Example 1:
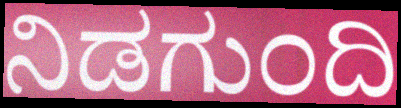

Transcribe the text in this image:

ನಿಡಗುಂದಿ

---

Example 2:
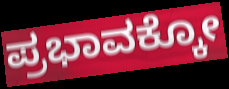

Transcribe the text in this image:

ಪ್ರಭಾವಕ್ಕೋ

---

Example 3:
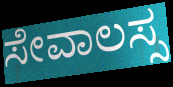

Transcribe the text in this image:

ಸೇವಾಲಸ್ಸ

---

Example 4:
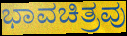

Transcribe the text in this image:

ಭಾವಚಿತ್ರವು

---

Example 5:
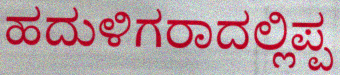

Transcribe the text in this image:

ಹದುಳಿಗರಾದಲ್ಲಿಪ್ಪ